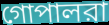
গোপালরা